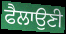
ਫੈਲਾਉਣੀ